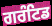
ਗਰੰਟਿਡ